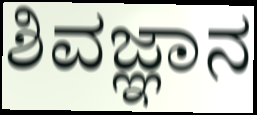
ಶಿವಜ್ಞಾನ